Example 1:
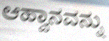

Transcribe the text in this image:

ಆಹ್ವಾನವನ್ನು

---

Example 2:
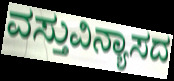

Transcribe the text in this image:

ವಸ್ತುವಿನ್ಯಾಸದ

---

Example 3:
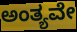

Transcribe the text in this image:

ಅಂತ್ಯವೇ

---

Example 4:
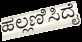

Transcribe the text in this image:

ಹಲ್ಲಣಿಸಿದೈ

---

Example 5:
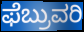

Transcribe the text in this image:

ಫೆಬ್ರುವರಿ